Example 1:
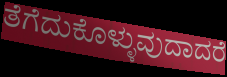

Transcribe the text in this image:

ತೆಗೆದುಕೊಳ್ಳುವುದಾದರೆ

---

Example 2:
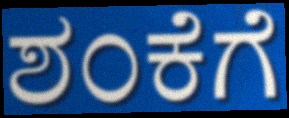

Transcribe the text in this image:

ಶಂಕೆಗೆ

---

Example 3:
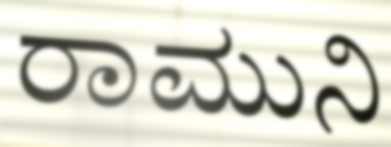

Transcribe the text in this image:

ರಾಮುನಿ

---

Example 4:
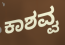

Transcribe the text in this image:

ಕಾಶವ್ವ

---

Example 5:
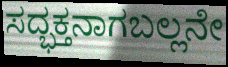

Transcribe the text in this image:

ಸದ್ಭಕ್ತನಾಗಬಲ್ಲನೇ